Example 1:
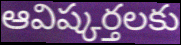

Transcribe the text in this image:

ఆవిష్కర్తలకు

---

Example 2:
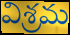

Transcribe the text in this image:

విశ్రమ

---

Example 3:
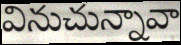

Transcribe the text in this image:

వినుచున్నావా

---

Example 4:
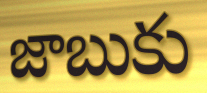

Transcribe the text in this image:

జాబుకు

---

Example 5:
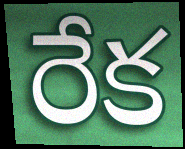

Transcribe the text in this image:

రేక